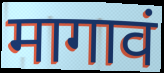
मागावं